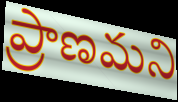
ప్రాణమని